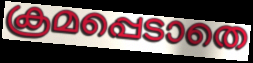
ക്രമപ്പെടാതെ